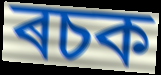
ৰচক